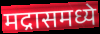
मद्रासमध्ये